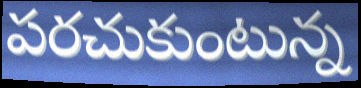
పరచుకుంటున్న